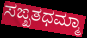
ಸಙ್ಖತಧಮ್ಮಾ